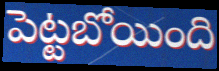
పెట్టబోయింది